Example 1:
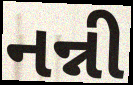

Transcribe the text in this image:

નન્ની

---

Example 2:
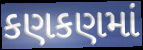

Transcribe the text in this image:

કણકણમાં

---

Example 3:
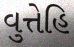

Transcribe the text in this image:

વુત્તેહિ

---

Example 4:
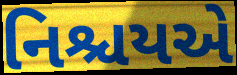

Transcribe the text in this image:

નિશ્ચયએ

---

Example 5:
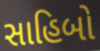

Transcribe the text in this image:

સાહિબો